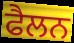
ਫੈਲਨ